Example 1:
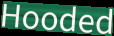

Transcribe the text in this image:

Hooded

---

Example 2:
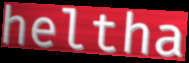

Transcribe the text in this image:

heltha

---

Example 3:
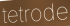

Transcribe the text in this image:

tetrode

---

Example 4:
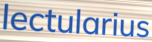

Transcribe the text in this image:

lectularius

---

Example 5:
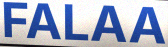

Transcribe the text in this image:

FALAA